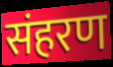
संहरण